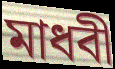
মাধবী